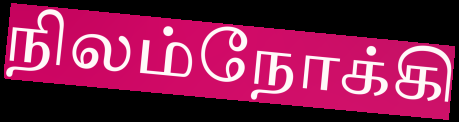
நிலம்நோக்கி